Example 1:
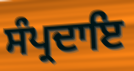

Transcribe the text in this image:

ਸੰਪ੍ਰਦਾਇ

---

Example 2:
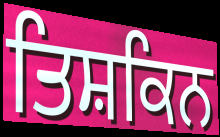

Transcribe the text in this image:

ਤਿਸ਼ਕਿਨ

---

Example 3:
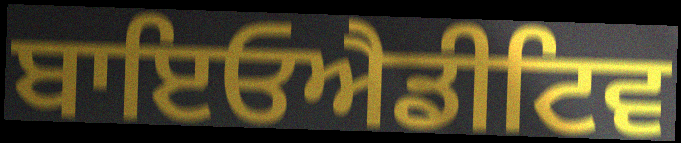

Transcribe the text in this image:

ਬਾਇਓਐਡੀਟਿਵ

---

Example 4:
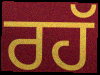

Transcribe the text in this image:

ਰਹੱ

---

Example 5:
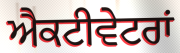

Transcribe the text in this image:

ਐਕਟੀਵੇਟਰਾਂ